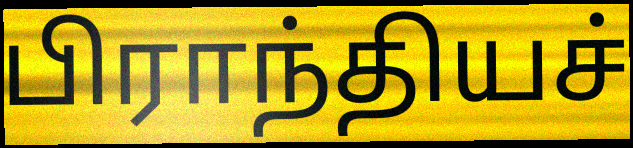
பிராந்தியச்